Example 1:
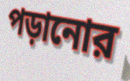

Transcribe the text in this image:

পড়ানোর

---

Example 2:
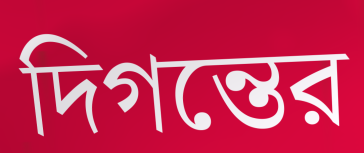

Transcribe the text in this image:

দিগন্তের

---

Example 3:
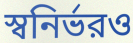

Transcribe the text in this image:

স্বনির্ভরও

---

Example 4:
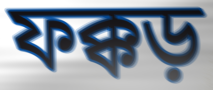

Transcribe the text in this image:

ফক্কড়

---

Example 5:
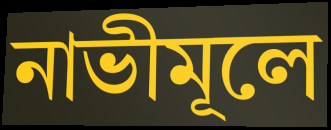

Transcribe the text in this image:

নাভীমূলে